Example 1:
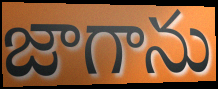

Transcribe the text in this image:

జాగాను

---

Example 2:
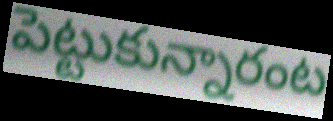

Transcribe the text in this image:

పెట్టుకున్నారంట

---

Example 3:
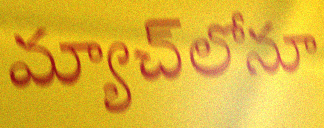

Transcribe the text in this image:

మ్యాచ్‌లోనూ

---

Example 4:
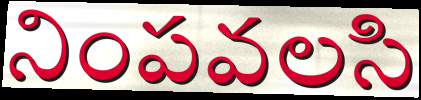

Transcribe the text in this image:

నింపవలసి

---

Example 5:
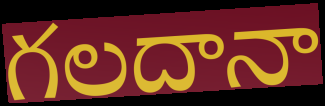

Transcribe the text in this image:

గలదానా